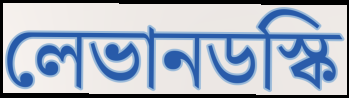
লেভানডস্কি